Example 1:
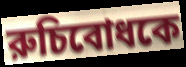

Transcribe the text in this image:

রুচিবোধকে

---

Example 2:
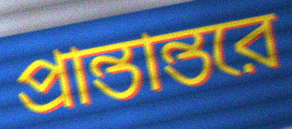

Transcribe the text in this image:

প্রান্তান্তরে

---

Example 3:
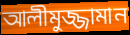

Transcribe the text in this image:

আলীমুজ্জামান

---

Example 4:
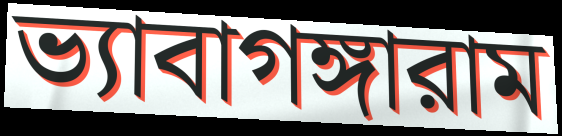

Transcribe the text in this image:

ভ্যাবাগঙ্গারাম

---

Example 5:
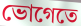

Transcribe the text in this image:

ভোগেতে